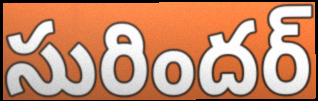
సురిందర్